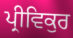
ਪ੍ਰੀਵਿਕੁਰ